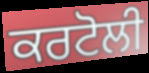
ਕਰਟੋਲੀ